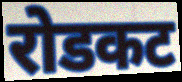
रोडकट